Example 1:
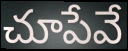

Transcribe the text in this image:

చూపేవే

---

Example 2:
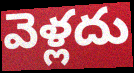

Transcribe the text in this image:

వెళ్లదు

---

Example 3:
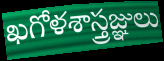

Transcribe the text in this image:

ఖగోళశాస్త్రజ్ఞులు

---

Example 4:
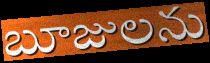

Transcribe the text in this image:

బూజులను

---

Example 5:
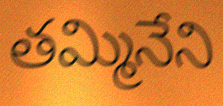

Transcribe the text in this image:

తమ్మినేని